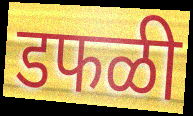
डफळी